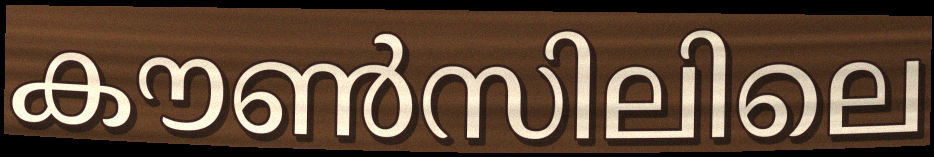
കൗൺസിലിലെ